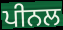
ਪੀਨਲ